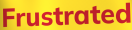
Frustrated